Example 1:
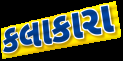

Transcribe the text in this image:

કલાકારા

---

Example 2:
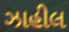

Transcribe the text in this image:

ઝાહીલ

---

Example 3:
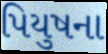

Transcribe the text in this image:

પિયુષના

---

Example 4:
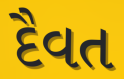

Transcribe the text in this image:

દૈવત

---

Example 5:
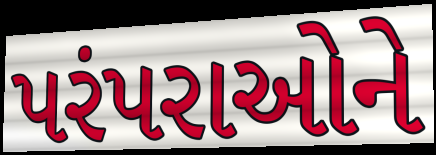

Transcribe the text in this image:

પરંપરાઓને